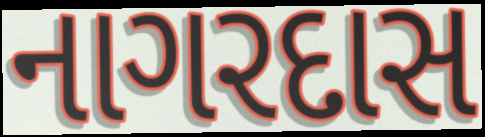
નાગરદાસ